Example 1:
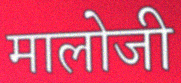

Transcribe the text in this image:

मालोजी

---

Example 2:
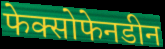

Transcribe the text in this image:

फेक्सोफेनडीन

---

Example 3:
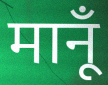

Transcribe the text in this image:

मानूँ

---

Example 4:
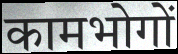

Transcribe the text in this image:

कामभोगों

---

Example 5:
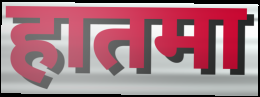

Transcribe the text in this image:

हातमा